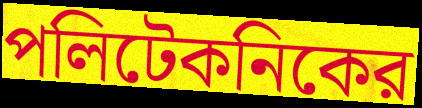
পলিটেকনিকের